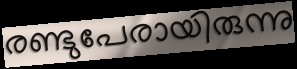
രണ്ടുപേരായിരുന്നു